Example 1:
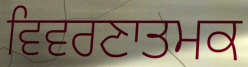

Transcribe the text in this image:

ਵਿਵਰਣਾਤਮਕ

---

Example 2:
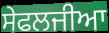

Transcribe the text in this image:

ਸੇਫਲਜੀਆ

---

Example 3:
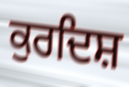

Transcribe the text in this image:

ਕੁਰਦਿਸ਼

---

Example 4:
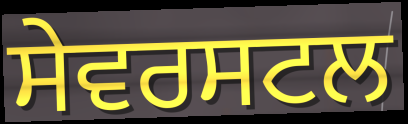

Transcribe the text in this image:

ਸੇਵਰਸਟਲ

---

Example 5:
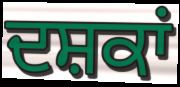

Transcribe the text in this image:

ਦਸ਼ਕਾਂ